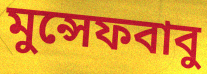
মুন্সেফবাবু